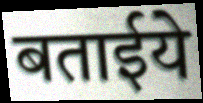
बताईये